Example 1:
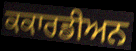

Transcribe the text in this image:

ਕਕਾਰਡੀਅਨ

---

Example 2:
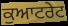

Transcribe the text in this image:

ਕੁਆਟਰੇਟ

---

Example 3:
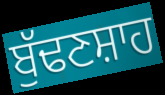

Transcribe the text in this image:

ਬੁੱਢਣਸ਼ਾਹ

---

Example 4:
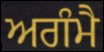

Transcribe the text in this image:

ਅਗੰਮੈ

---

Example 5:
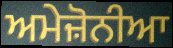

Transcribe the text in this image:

ਅਮੇਜ਼ੋਨੀਆ